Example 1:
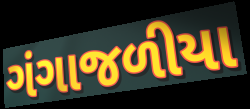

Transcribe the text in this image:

ગંગાજળીયા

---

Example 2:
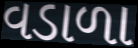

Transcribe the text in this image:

વડાળા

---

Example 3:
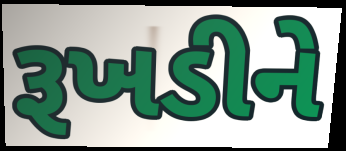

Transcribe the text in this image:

રૂખડીને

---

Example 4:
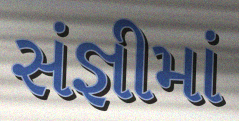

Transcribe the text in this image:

સંજ્ઞીમાં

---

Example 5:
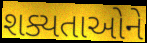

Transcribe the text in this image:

શક્યતાઓને